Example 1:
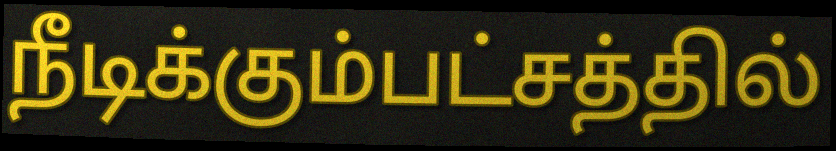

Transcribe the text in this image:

நீடிக்கும்பட்சத்தில்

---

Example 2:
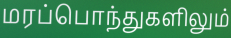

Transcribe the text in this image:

மரப்பொந்துகளிலும்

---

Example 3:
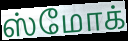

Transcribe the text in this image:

ஸ்மோக்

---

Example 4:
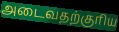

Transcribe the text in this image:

அடைவதற்குரிய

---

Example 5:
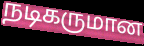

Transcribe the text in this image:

நடிகருமான